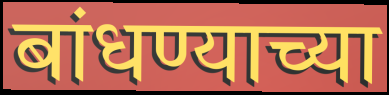
बांधण्याच्या